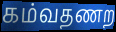
கம்வதணற